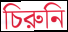
চিরুনি